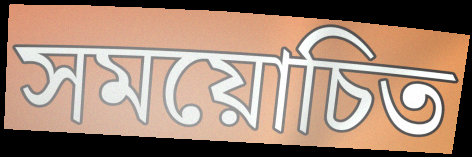
সময়োচিত